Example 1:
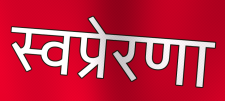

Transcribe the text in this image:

स्वप्रेरणा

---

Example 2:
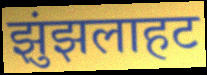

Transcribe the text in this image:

झुंझलाहट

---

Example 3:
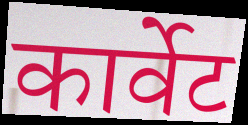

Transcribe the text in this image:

कार्वेट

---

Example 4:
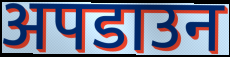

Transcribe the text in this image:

अपडाउन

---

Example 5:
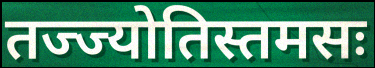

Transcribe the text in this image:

तज्ज्योतिस्तमसः